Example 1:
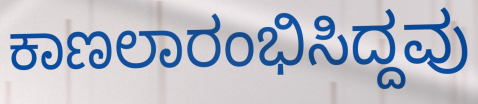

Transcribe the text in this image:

ಕಾಣಲಾರಂಭಿಸಿದ್ದವು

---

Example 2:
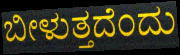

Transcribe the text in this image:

ಬೀಳುತ್ತದೆಂದು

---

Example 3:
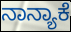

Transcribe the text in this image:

ನಾನ್ಯಾಕೆ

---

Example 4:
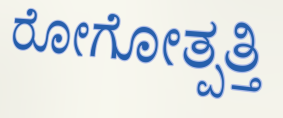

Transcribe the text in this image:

ರೋಗೋತ್ಪತ್ತಿ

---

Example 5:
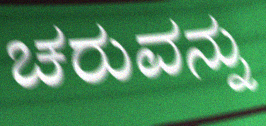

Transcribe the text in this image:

ಚರುವನ್ನು